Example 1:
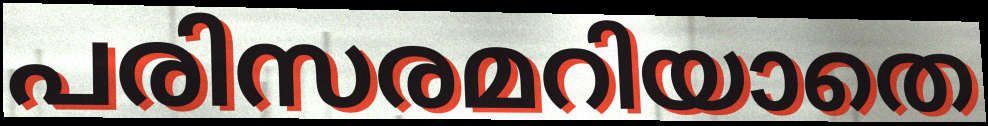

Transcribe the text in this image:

പരിസരമറിയാതെ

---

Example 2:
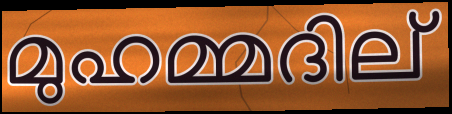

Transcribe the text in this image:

മുഹമ്മദില്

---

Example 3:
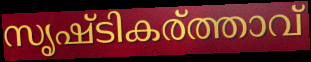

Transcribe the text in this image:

സൃഷ്ടികര്ത്താവ്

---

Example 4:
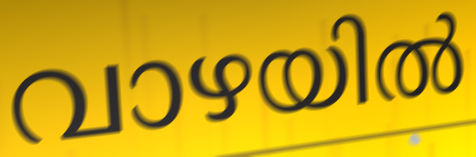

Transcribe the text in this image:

വാഴയിൽ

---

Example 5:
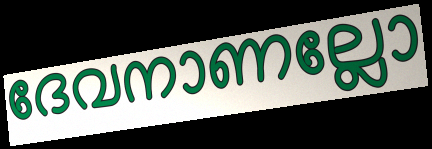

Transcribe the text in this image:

ദേവനാണല്ലോ